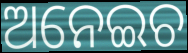
ଅନେଇଚ